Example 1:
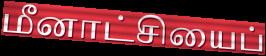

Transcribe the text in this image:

மீனாட்சியைப்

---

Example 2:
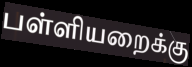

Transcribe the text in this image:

பள்ளியறைக்கு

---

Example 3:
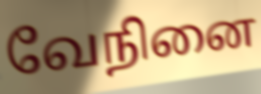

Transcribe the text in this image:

வேநினை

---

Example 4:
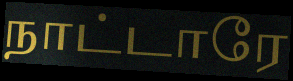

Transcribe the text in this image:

நாட்டாரே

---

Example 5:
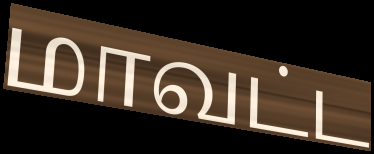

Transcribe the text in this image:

மாவட்ட